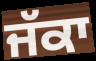
ਜੱਕਾ